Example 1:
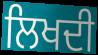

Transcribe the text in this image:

ਲਿਖਦੀ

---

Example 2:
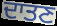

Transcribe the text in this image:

ਦਾਤਣ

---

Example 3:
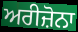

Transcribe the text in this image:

ਅਰੀਜ਼ੋਨਾ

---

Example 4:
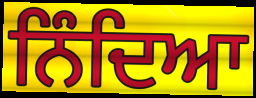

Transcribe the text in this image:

ਨਿੰਦਿਆ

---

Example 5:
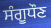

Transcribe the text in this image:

ਸੰਗੂਧੌਣ